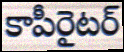
కాపీరైటర్